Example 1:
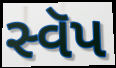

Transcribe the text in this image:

સ્વૅપ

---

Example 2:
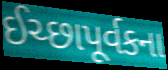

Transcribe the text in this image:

ઈચ્છાપૂર્વકના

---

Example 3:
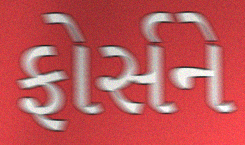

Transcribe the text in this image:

ફોર્સને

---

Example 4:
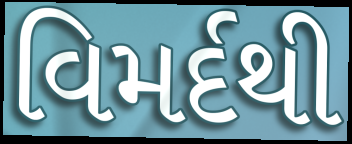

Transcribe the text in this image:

વિમર્દથી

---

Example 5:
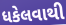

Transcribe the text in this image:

ધકેલવાથી